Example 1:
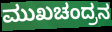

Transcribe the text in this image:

ಮುಖಚಂದ್ರನ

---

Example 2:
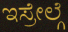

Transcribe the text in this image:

ಇಸ್ರೇಲ್ಗೆ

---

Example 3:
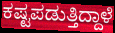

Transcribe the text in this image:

ಕಷ್ಟಪಡುತ್ತಿದ್ದಾಳೆ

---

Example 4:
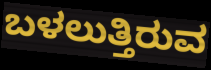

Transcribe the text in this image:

ಬಳಲುತ್ತಿರುವ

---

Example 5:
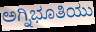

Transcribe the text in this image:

ಅಗ್ನಿಭೂತಿಯು